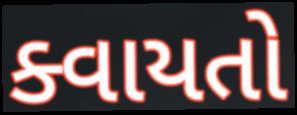
ક્વાયતો